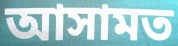
আসামত